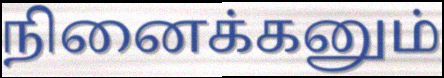
நினைக்கனும்